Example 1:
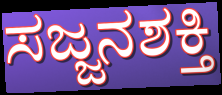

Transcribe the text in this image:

ಸಜ್ಜನಶಕ್ತಿ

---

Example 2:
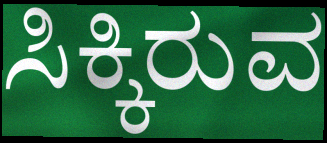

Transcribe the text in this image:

ಸಿಕ್ಕಿರುವ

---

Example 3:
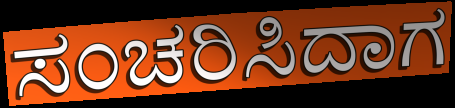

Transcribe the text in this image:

ಸಂಚರಿಸಿದಾಗ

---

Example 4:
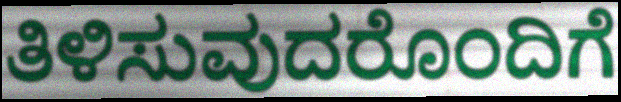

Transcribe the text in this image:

ತಿಳಿಸುವುದರೊಂದಿಗೆ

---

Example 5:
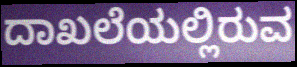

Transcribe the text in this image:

ದಾಖಲೆಯಲ್ಲಿರುವ